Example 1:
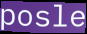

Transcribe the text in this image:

posle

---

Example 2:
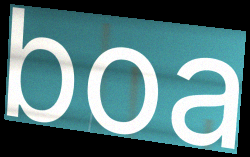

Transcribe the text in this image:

boa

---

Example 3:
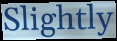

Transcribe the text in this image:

Slightly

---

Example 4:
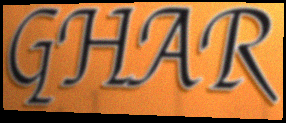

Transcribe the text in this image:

GHAR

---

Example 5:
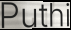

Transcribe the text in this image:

Puthi